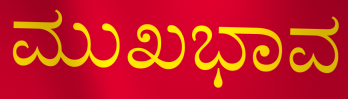
ಮುಖಭಾವ